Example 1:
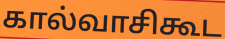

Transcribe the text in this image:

கால்வாசிகூட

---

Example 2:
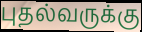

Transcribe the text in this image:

புதல்வருக்கு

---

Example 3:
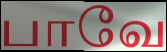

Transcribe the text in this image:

பாவே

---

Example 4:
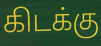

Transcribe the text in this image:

கிடக்கு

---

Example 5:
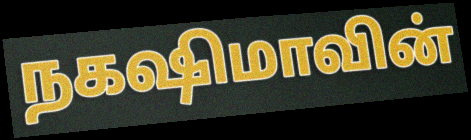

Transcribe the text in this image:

நகஷிமாவின்